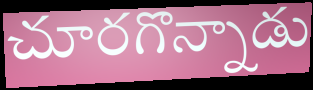
చూరగొన్నాడు